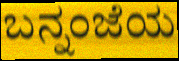
ಬನ್ನಂಜೆಯ